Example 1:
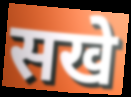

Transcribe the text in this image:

सखे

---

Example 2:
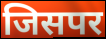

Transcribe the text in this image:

जिसपर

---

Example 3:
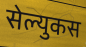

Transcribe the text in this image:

सेल्युकस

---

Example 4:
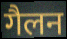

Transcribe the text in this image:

गैलन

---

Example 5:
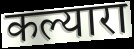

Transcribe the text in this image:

कल्यारा